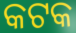
କଟକ